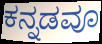
ಕನ್ನಡವೂ